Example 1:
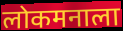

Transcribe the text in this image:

लोकमनाला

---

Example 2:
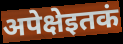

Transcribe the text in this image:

अपेक्षेइतकं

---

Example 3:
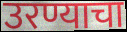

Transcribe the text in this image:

उरण्याचा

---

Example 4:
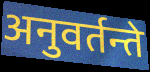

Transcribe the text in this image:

अनुवर्तन्ते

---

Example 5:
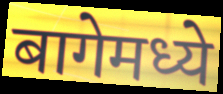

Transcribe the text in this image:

बागेमध्ये